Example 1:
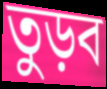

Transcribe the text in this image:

তুড়ব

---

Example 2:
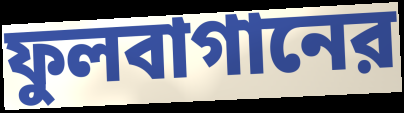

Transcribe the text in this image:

ফুলবাগানের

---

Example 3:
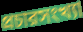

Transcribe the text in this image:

প্রচারসংখ্যা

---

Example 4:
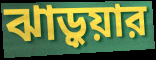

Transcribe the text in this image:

ঝাড়ুয়ার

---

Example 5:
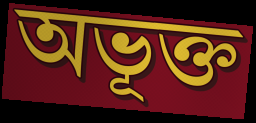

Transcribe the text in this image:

অভূক্ত